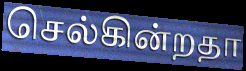
செல்கின்றதா